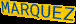
MARQUEZ